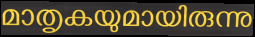
മാതൃകയുമായിരുന്നു